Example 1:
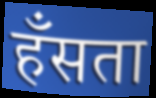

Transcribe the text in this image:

हॅंसता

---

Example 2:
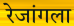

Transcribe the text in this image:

रेजांगला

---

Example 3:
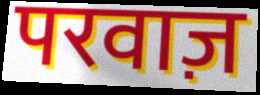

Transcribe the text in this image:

परवाज़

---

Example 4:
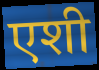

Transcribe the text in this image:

एशी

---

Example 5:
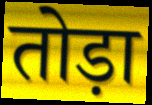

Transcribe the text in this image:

तोड़ा